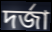
দৰ্জা